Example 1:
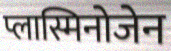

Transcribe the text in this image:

प्लास्मिनोजेन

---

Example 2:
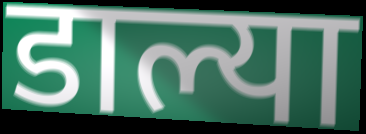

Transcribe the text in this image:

डाल्या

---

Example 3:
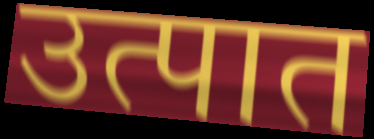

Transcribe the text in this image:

उत्पात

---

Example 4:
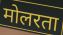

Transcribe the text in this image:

मोलरता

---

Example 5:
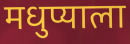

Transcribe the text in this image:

मधुप्याला